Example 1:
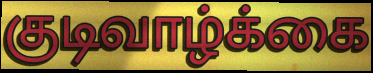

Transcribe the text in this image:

குடிவாழ்க்கை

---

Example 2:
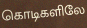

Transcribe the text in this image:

கொடிகளிலே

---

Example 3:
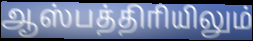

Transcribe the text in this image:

ஆஸ்பத்திரியிலும்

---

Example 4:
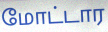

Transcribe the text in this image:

மோட்டார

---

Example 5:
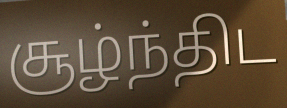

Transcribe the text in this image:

சூழ்ந்திட